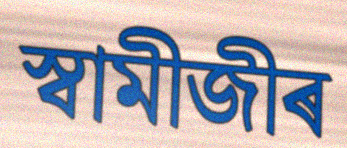
স্বামীজীৰ